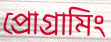
প্রোগ্রামিং